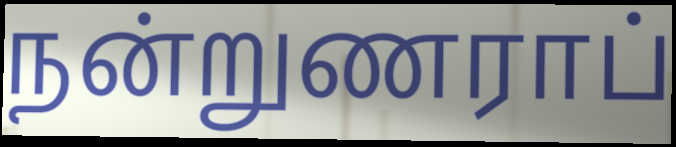
நன்றுணராப்